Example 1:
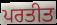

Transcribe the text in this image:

ਪਰਤੀਤ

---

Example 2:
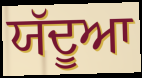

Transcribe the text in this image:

ਯੱਦੂਆ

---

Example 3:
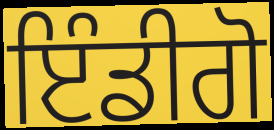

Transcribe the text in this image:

ਇੰਡੀਗੋ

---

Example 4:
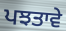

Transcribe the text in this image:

ਪਝਤਾਵੇ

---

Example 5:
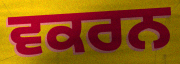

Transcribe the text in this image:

ਵਕਰਨ